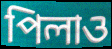
পিলাও